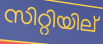
സിറ്റിയില്